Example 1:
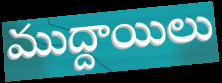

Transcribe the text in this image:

ముద్దాయిలు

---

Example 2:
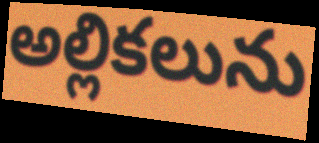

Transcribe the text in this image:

అల్లికలును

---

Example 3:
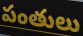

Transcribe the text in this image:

పంతులు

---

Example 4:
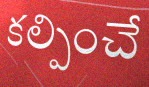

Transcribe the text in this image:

కల్పించే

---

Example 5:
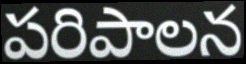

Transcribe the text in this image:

పరిపాలన